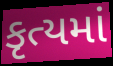
કૃત્યમાં